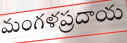
మంగళప్రదాయ